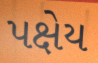
પક્ષેય